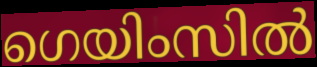
ഗെയിംസിൽ